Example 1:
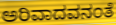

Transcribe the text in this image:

ಅರಿವಾದವನಂತೆ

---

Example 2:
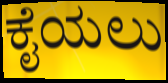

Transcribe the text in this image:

ಕೈಯಲು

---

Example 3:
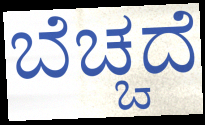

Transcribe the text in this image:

ಬೆಚ್ಚದೆ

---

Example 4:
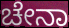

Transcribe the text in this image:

ಚೇನಾ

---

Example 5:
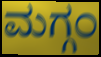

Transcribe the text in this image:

ಮಗ್ಗಂ